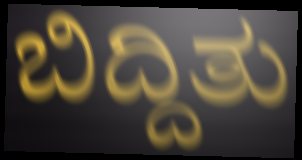
ಬಿದ್ದಿತು